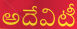
అదేవిటీ